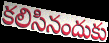
కలిసినందుకు